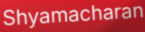
Shyamacharan